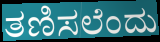
ತಣಿಸಲೆಂದು